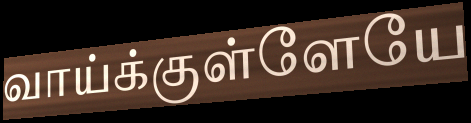
வாய்க்குள்ளேயே